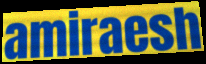
amiraesh